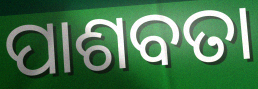
ପାଶବତା